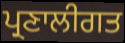
ਪ੍ਰਣਾਲੀਗਤ